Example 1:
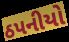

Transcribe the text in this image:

ઠપનીયો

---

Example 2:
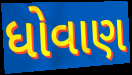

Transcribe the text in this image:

ધોવાણ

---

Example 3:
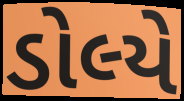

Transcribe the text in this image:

ડોલ્યે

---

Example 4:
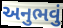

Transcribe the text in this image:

અનુભવું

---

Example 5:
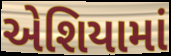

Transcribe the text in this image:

એશિયામાં